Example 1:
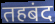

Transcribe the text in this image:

तहबंद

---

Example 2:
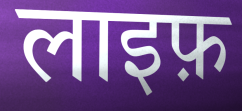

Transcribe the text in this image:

लाइफ़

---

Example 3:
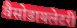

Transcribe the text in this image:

वैसोडायलेटरी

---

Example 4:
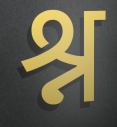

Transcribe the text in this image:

श्न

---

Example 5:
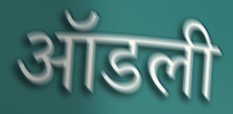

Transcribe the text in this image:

ऑडली